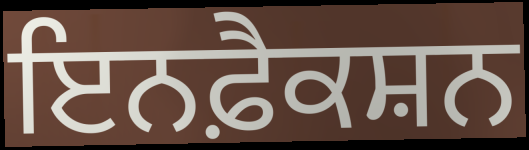
ਇਨਫ਼ੈਕਸ਼ਨ